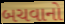
બચવાનો